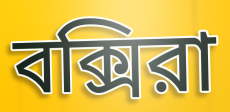
বক্সিরা